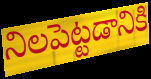
నిలపెట్టడానికి